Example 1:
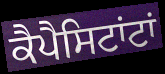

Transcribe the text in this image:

ਕੈਪੈਸਿਟਾਂਟਾਂ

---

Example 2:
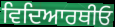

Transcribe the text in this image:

ਵਿਦਿਆਰਥੀਓ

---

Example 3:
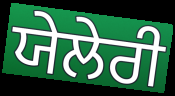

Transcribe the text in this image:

ਯੇਲੇਰੀ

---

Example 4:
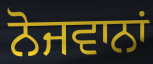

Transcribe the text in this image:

ਨੋਜਵਾਨਾਂ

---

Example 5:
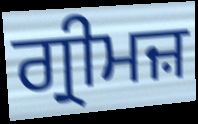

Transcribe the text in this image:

ਗ੍ਰੀਮਜ਼